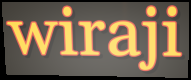
wiraji